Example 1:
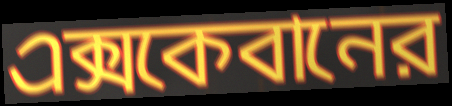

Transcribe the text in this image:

এক্সকেবানের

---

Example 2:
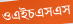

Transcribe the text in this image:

ওএইচএসএস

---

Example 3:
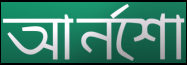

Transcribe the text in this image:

আর্নশো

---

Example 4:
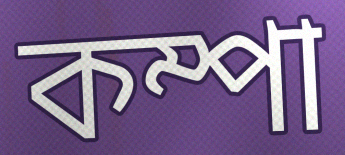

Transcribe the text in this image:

কম্পা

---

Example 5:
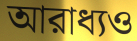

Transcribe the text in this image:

আরাধ্যও